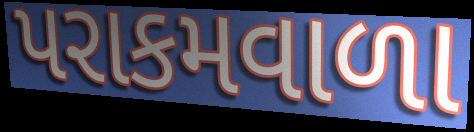
પરાકમવાળા